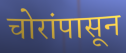
चोरांपासून